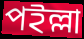
পইল্লা